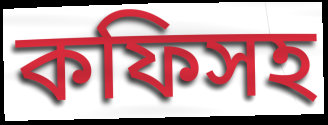
কফিসহ